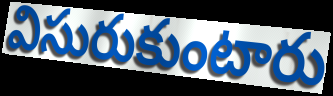
విసురుకుంటారు